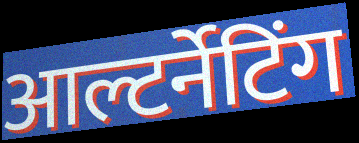
आल्टर्नेटिंग